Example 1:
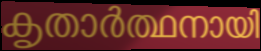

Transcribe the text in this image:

കൃതാർത്ഥനായി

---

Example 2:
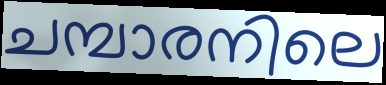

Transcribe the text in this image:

ചമ്പാരനിലെ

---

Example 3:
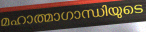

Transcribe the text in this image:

മഹാത്മാഗാന്ധിയുടെ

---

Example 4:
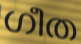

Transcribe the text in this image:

ഗീത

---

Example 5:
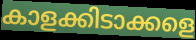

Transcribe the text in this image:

കാളക്കിടാക്കളെ